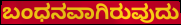
ಬಂಧನವಾಗಿರುವುದು